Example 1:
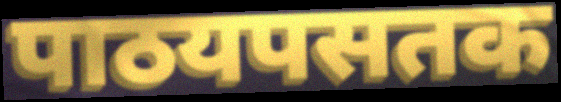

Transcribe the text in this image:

पाठयपसतक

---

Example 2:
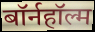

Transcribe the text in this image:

बॉर्नहॉल्म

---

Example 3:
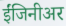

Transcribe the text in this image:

ईंजिनीअर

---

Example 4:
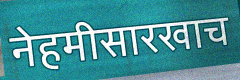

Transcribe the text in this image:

नेहमीसारखाच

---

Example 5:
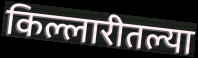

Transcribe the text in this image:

किल्लारीतल्या